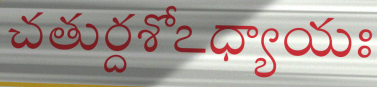
చతుర్దశోఽధ్యాయః